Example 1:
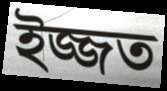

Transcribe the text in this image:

ইজ্জত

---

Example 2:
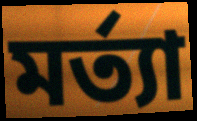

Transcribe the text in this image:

মর্ত্যা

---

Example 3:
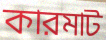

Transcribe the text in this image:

কারমাট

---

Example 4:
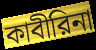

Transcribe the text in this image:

কাবীরিনা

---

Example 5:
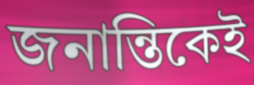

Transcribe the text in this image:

জনান্তিকেই